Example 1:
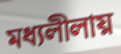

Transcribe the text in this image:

মধ্যলীলায়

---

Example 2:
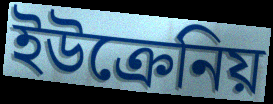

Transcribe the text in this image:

ইউক্রেনিয়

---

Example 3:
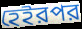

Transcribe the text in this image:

হেইরপর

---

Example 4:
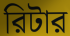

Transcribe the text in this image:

রিটার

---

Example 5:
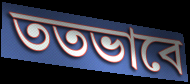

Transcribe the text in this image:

ততভাবে